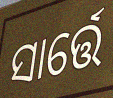
ସାର୍ତ୍ତେ